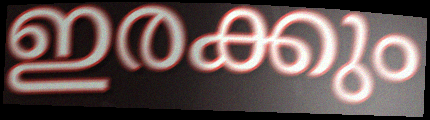
ഇരക്കും